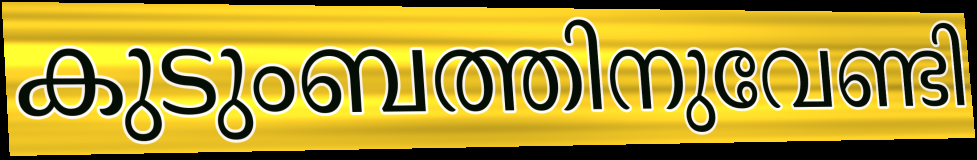
കുടുംബത്തിനുവേണ്ടി